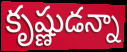
కృష్ణుడన్నా